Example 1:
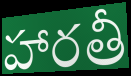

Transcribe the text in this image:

హారతీ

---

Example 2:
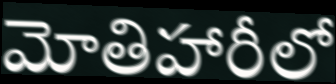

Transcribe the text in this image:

మోతిహారీలో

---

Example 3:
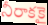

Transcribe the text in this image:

నీరాకకై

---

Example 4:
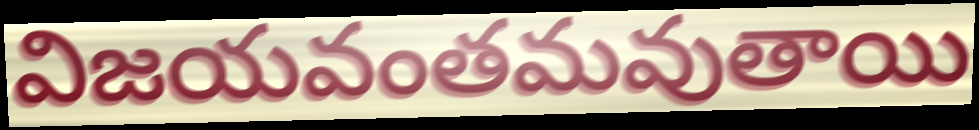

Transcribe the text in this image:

విజయవంతమవుతాయి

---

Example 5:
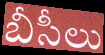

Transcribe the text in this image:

బీసీలు